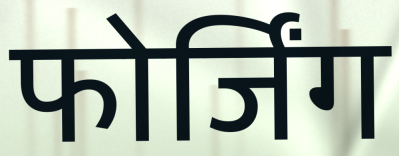
फोर्जिंग